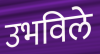
उभविले